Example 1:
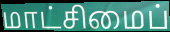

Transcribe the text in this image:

மாட்சிமைப்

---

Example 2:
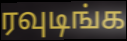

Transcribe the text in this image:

ரவுடிங்க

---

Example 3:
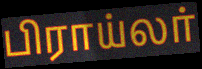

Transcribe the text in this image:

பிராய்லர்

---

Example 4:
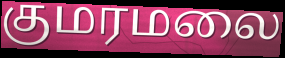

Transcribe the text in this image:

குமரமலை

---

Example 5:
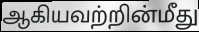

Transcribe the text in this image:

ஆகியவற்றின்மீது